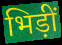
भिड़ीं